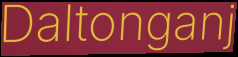
Daltonganj